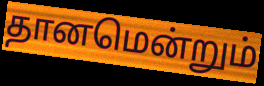
தானமென்றும்